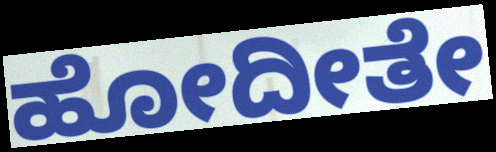
ಹೋದೀತೇ